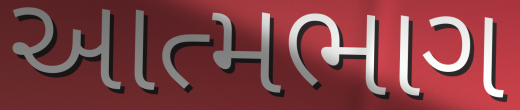
આત્મભાગ